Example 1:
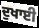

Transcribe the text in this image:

ਦੁਖਾਈ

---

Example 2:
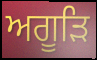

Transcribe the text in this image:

ਅਗੂੜਿ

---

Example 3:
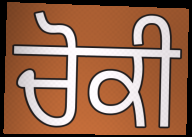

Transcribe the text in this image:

ਚੋਕੀ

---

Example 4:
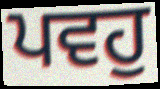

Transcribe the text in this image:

ਪਵਹੁ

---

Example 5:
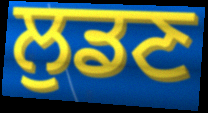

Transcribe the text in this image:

ਲੁਡਣ